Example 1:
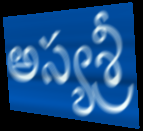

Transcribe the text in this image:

అస్యశ్రీ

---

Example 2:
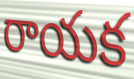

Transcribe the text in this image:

రాయక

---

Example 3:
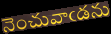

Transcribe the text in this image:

నెంచువాఁడను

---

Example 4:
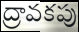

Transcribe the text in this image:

ద్రావకపు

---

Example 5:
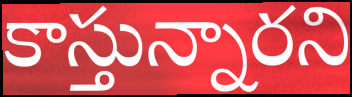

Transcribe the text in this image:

కాస్తున్నారని